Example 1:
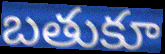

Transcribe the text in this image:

బతుకూ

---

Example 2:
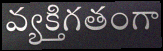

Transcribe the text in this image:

వ్యక్తిగతంగా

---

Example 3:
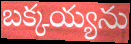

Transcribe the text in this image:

బక్కయ్యను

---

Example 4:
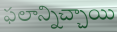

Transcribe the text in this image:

ఫలాన్నిచ్చాయి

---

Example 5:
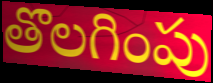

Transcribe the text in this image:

తొలగింపు